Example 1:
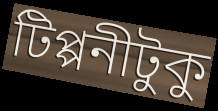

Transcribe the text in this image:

টিপ্পনীটুকু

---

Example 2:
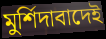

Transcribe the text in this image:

মুর্শিদাবাদেই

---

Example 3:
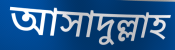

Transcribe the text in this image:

আসাদুল্লাহ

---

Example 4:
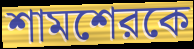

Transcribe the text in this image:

শামশেরকে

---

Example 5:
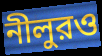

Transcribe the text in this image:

নীলুরও